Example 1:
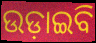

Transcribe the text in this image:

ଉଡ଼ାଇବି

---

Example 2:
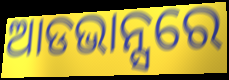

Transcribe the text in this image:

ଆଡଭାନ୍ସରେ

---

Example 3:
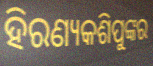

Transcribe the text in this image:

ହିରଣ୍ୟକଶିପୁଙ୍କର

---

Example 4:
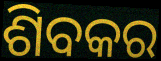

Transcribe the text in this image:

ଶିବକର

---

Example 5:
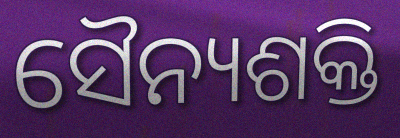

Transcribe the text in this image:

ସୈନ୍ୟଶକ୍ତି